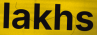
lakhs